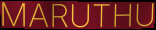
MARUTHU